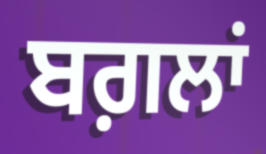
ਬਗ਼ਲਾਂ